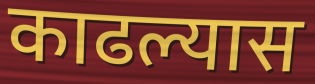
काढल्यास